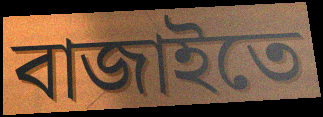
বাজাইতে